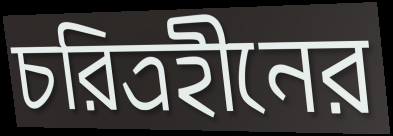
চরিত্রহীনের